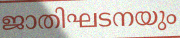
ജാതിഘടനയും